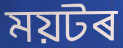
ময়টৰ